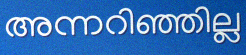
അന്നറിഞ്ഞില്ല